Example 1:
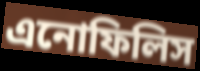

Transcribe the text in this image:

এনোফিলিস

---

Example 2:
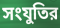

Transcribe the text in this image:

সংযুতির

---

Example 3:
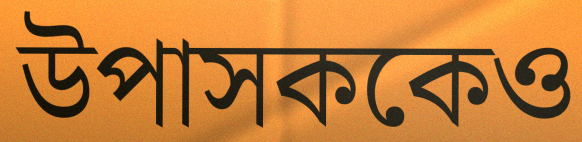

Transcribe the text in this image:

উপাসককেও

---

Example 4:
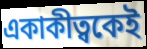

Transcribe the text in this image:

একাকীত্বকেই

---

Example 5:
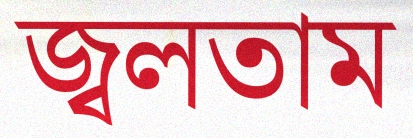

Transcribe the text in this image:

জ্বলতাম